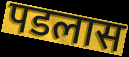
पडलास